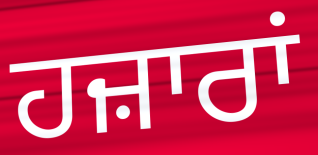
ਹਜ਼ਾਰਾਂ